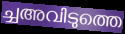
ച്ചഅവിടുത്തെ